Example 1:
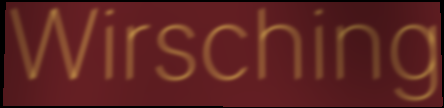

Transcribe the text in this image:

Wirsching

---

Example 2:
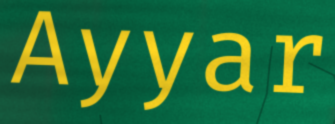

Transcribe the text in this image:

Ayyar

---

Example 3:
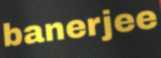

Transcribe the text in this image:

banerjee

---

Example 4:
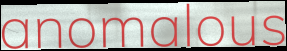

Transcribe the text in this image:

anomalous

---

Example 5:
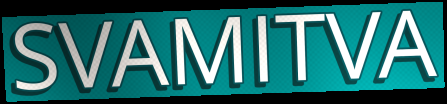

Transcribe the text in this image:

SVAMITVA